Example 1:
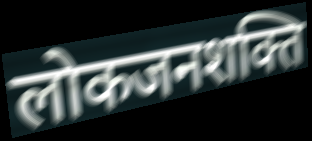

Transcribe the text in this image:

लोकजनशक्ति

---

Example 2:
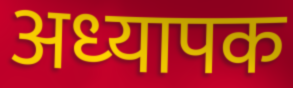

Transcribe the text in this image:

अध्‍यापक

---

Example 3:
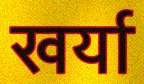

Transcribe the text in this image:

खर्या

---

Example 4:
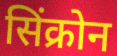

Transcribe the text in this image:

सिंक्रोन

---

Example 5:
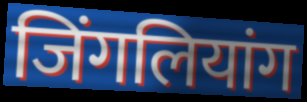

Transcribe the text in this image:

जिंगलियांग